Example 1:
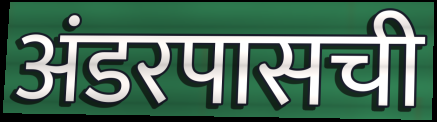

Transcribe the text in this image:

अंडरपासची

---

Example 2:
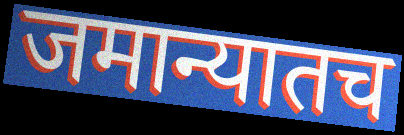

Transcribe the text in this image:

जमान्यातच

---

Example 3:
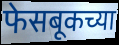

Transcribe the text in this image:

फेसबूकच्या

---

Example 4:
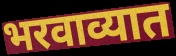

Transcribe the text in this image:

भरवाव्यात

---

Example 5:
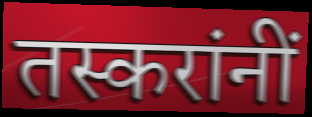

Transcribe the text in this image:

तस्करांनीं